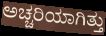
ಅಚ್ಚರಿಯಾಗಿತ್ತು